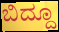
ಬಿದ್ದೂ